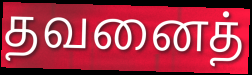
தவனைத்